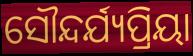
ସୌନ୍ଦର୍ଯ୍ୟପ୍ରିୟା